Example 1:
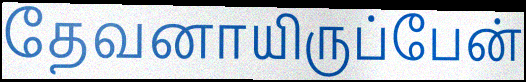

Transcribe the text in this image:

தேவனாயிருப்பேன்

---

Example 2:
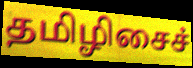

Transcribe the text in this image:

தமிழிசைச்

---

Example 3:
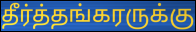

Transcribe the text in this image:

தீர்த்தங்கரருக்கு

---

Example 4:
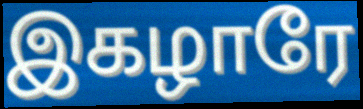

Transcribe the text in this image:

இகழாரே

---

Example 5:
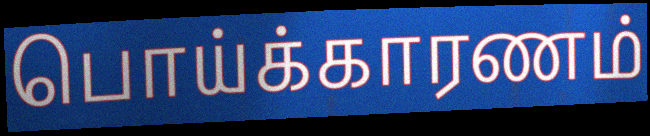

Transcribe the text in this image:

பொய்க்காரணம்